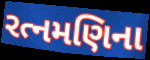
રત્નમણિના